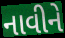
નાવીને